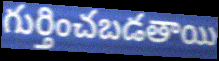
గుర్తించబడతాయి